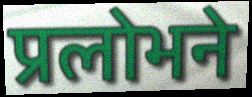
प्रलोभने